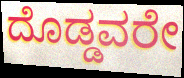
ದೊಡ್ಡವರೇ